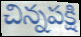
చిన్నపక్షి